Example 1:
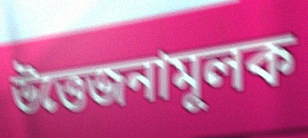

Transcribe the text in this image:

উত্তেজনামূলক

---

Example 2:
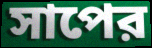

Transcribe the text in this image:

সাপের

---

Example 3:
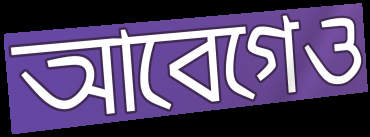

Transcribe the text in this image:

আবেগেও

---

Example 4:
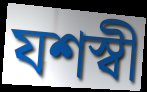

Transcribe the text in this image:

যশস্বী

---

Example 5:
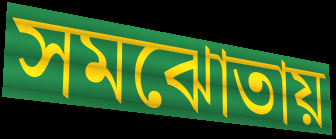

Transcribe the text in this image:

সমঝোতায়